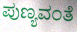
ಪುಣ್ಯವಂತೆ